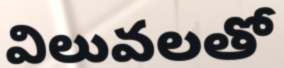
విలువలతో